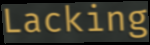
Lacking